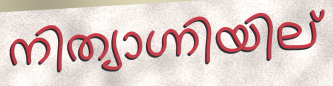
നിത്യാഗ്നിയില്